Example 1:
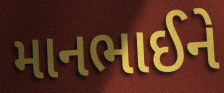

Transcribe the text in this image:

માનભાઈને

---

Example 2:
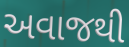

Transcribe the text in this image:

અવાજથી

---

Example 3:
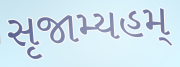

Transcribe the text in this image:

સૃજામ્યહમ્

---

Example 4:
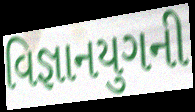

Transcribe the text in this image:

વિજ્ઞાનયુગની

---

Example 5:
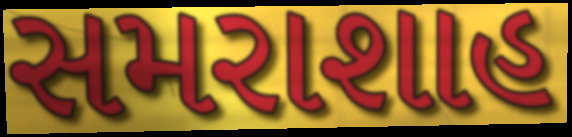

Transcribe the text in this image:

સમરાશાહ